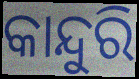
କାନ୍ଦୁରି